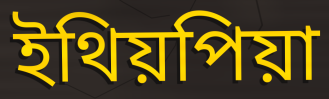
ইথিয়পিয়া